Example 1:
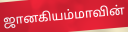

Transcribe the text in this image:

ஜானகியம்மாவின்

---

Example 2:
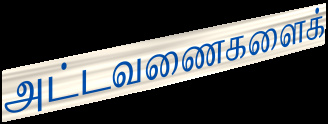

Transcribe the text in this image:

அட்டவணைகளைக்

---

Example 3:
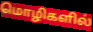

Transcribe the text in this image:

மொழிகளில்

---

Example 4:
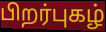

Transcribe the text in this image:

பிறர்புகழ்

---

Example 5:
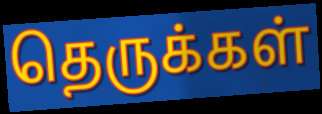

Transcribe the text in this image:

தெருக்கள்